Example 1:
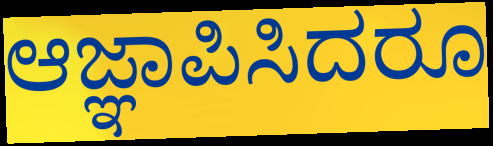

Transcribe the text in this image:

ಆಜ್ಞಾಪಿಸಿದರೂ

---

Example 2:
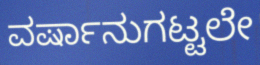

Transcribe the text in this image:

ವರ್ಷಾನುಗಟ್ಟಲೇ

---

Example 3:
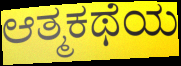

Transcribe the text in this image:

ಆತ್ಮಕಥೆಯ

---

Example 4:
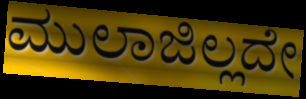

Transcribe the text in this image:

ಮುಲಾಜಿಲ್ಲದೇ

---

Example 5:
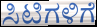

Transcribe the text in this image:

ಸಿಟಿಗಳಿಗೆ